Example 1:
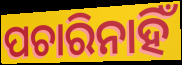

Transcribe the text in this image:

ପଚାରିନାହିଁ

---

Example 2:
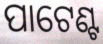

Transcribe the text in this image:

ପାଟେଣ୍ଟ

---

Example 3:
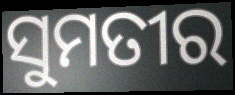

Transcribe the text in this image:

ସୁମତୀର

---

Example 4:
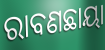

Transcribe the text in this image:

ରାବଣଛାୟା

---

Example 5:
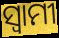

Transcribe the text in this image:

ସ୍ବାମୀ